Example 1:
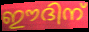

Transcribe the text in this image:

ഈദിന്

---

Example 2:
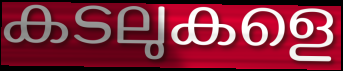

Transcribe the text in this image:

കടലുകളെ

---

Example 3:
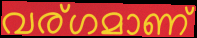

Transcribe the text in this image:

വര്ഗമാണ്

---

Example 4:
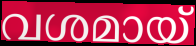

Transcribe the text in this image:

വശമായ്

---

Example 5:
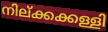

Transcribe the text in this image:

നില്ക്കക്കള്ളി